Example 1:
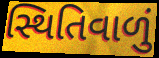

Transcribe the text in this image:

સ્થિતિવાળું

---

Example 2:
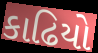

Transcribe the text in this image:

કાઢિયો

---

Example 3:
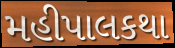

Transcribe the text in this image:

મહીપાલકથા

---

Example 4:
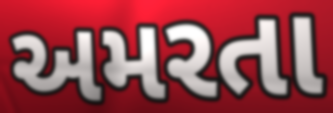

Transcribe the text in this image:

અમરતા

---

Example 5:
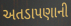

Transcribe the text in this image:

અતડાપણાની